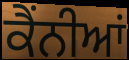
ਕੈਂਨੀਆਂ